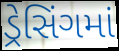
ડ્રેસિંગમાં